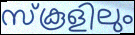
സ്കൂളിലും